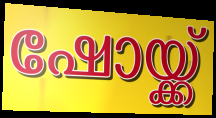
ഷോയ്ക്ക്